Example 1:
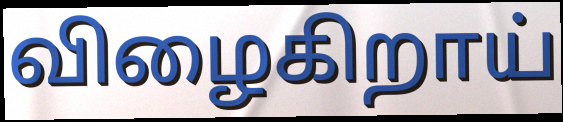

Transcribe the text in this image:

விழைகிறாய்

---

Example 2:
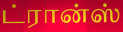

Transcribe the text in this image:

ட்ரான்ஸ்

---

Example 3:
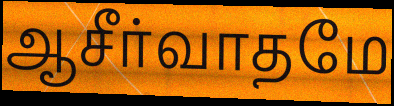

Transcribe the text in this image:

ஆசீர்வாதமே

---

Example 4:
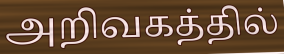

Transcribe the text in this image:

அறிவகத்தில்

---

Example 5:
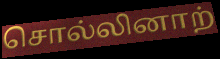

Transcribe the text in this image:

சொல்லினாற்